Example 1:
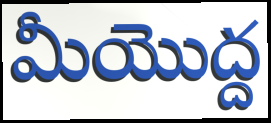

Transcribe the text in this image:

మీయొద్ద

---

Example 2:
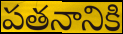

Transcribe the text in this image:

పతనానికి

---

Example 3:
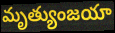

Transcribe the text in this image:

మృత్యుంజయా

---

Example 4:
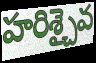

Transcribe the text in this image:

హరిశ్చైవ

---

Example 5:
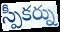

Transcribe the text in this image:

స్పీకర్ను